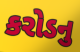
કરોડનુ